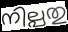
നില്പതു